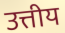
उत्तीय